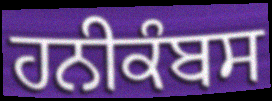
ਹਨੀਕੰਬਸ